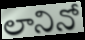
లానినో